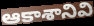
ఆకాశానివి